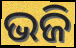
ଭଜି